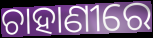
ଚାହାଣୀରେ